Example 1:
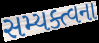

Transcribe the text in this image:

સમ્યક્ત્વના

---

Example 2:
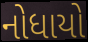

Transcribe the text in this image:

નોધાયો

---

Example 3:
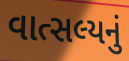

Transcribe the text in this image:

વાત્સલ્યનું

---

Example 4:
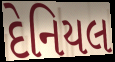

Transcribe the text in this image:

દેનિયલ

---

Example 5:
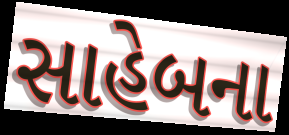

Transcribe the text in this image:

સાહેબના